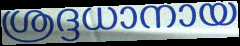
ശ്രദ്ദധാനായ